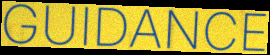
GUIDANCE